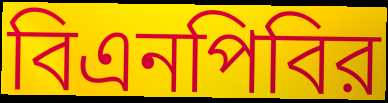
বিএনপিবির